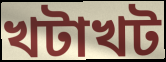
খটাখট